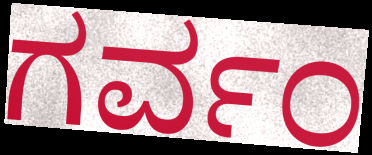
ಗರ್ವಂ